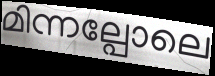
മിന്നല്പോലെ